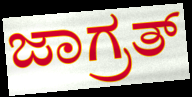
ಜಾಗ್ರತ್